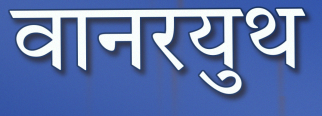
वानरयुथ